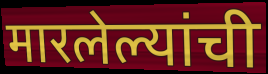
मारलेल्यांची